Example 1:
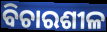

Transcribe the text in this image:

ବିଚାରଶୀଳ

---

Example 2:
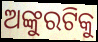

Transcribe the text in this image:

ଅଙ୍କୁରଟିକୁ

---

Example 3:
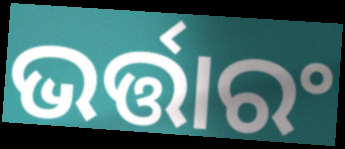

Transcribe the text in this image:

ଭର୍ତ୍ତାରଂ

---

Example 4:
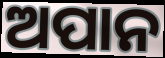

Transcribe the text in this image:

ଅପାନ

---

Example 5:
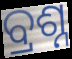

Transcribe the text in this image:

ବ୍ରଶ୍ନ